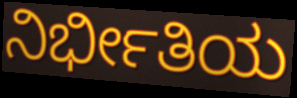
ನಿರ್ಭೀತಿಯ